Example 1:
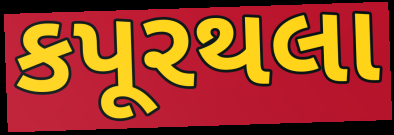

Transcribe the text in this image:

કપૂરથલા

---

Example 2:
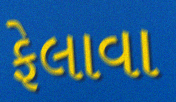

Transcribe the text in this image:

ફેલાવા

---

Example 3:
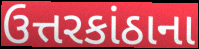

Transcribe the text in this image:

ઉત્તરકાંઠાના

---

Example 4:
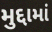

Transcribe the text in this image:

મુદ્દામાં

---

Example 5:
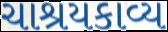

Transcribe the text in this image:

ચાશ્રયકાવ્ય